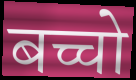
बच्चो